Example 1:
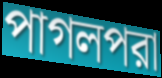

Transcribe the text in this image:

পাগলপরা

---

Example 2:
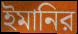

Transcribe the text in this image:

ইমানির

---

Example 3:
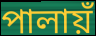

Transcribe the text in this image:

পালায়ঁ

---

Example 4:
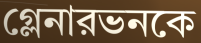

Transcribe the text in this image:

গ্লেনারভনকে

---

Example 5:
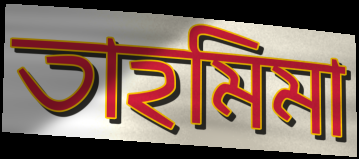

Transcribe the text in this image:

তাহমিমা